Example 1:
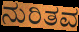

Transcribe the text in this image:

ನುರಿತವ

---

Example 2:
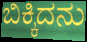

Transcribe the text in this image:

ಬಿಕ್ಕಿದನು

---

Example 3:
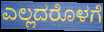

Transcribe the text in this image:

ಎಲ್ಲದರೊಳಗೆ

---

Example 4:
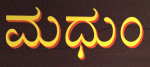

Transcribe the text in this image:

ಮಧುಂ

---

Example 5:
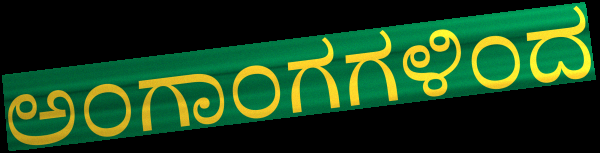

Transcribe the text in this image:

ಅಂಗಾಂಗಗಳಿಂದ